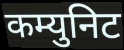
कम्युनिट